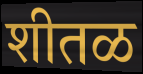
शीतळ